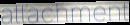
attachment